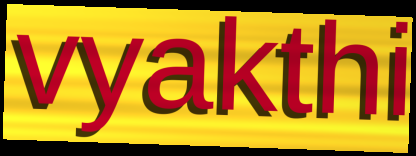
vyakthi